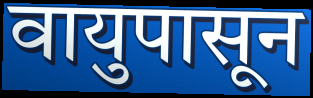
वायुपासून